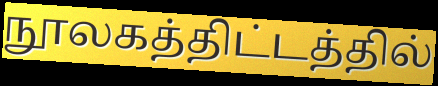
நூலகத்திட்டத்தில்